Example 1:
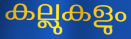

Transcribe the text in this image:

കല്ലുകളും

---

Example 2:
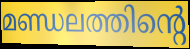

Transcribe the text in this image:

മണ്ഡലത്തിന്റെ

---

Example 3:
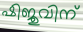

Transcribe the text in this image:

ഷിജുവിന്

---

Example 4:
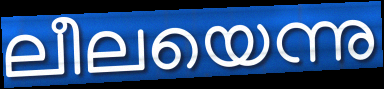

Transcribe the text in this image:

ലീലയെന്നു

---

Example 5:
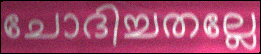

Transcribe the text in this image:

ചോദിച്ചതല്ലേ